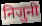
निजुनी